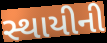
સ્થાયીની